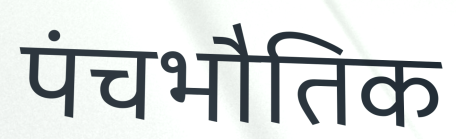
पंचभौतिक